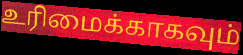
உரிமைக்காகவும்